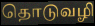
தொடுவழி